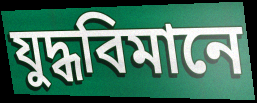
যুদ্ধবিমানে